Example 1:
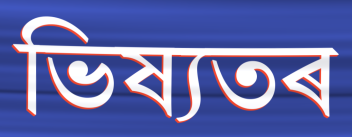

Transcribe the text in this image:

ভিষ্যতৰ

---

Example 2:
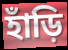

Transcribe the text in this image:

হাঁড়ি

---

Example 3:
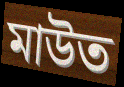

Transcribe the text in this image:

মাউত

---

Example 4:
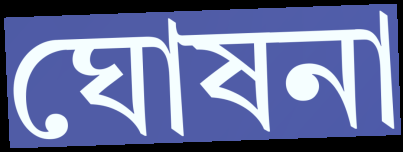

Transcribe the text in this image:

ঘোষনা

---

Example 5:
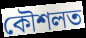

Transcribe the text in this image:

কৌশলত